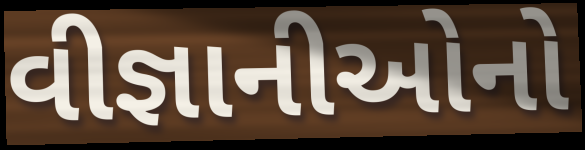
વીજ્ઞાનીઓનો